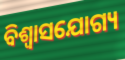
ବିଶ୍ବାସଯୋଗ୍ୟ